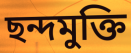
ছন্দমুক্তি